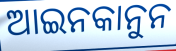
ଆଇନକାନୁନ